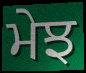
ਮੇਝ